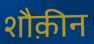
शौक़ीन